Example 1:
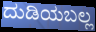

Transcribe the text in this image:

ದುಡಿಯಬಲ್ಲ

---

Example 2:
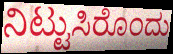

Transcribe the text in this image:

ನಿಟ್ಟುಸಿರೊಂದು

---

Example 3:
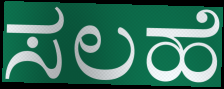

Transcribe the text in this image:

ಸಲಹೆ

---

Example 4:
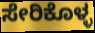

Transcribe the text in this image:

ಸೇರಿಕೊಳ್ಳ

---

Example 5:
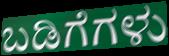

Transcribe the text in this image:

ಬಡಿಗೆಗಳು